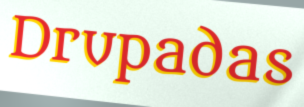
Drupadas